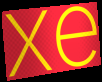
xe